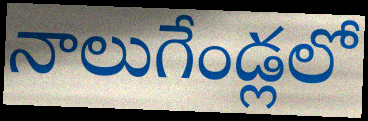
నాలుగేండ్లలో